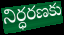
నిర్ధరణకు